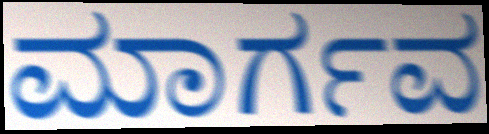
ಮಾರ್ಗವ